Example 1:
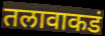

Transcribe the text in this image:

तलावाकडं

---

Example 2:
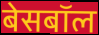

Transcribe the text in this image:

बेसबॉल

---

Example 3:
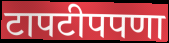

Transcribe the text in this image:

टापटीपपणा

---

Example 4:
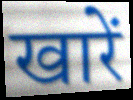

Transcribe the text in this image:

खारें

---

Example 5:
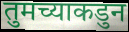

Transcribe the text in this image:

तुमच्याकडुन